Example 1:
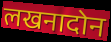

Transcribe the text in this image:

लखनादोन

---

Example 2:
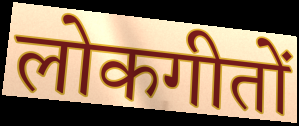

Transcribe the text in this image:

लोकगीतों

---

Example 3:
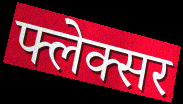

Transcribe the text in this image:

फ्लेक्सर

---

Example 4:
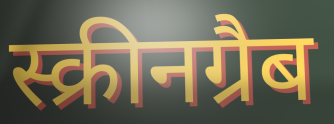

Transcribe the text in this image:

स्क्रीनग्रैब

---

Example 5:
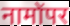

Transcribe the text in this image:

नामोंपर